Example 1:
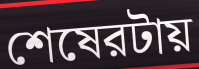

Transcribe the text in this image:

শেষেরটায়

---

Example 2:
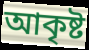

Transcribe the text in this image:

আকৃষ্ট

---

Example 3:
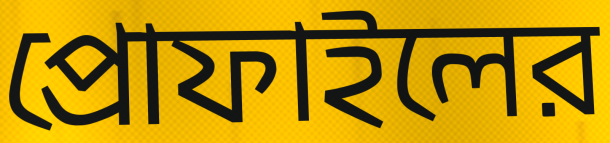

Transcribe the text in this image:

প্রোফাইলের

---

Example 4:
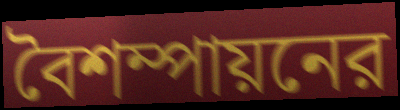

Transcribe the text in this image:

বৈশম্পায়নের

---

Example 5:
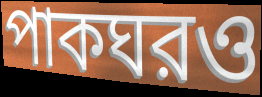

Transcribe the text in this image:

পাকঘরও